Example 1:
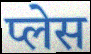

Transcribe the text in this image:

प्लेस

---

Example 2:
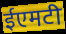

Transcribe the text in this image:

ईएमटी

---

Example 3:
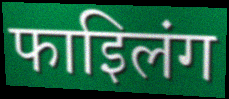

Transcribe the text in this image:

फाइिलंग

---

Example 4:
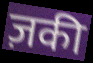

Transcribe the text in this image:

ज़की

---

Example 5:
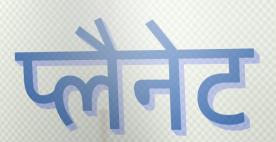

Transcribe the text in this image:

प्लैनेट